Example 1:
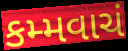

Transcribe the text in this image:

કમ્મવાચં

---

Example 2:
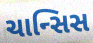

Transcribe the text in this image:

ચાન્સિસ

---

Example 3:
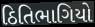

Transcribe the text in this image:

ઠિતિભાગિયો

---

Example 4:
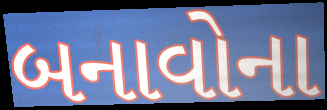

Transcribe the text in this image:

બનાવોના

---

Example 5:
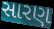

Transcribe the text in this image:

સારણ